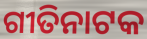
ଗୀତିନାଟକ